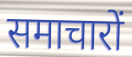
समाचारों